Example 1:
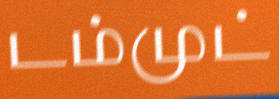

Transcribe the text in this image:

டம்முட்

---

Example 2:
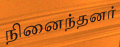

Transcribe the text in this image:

நினைந்தனர்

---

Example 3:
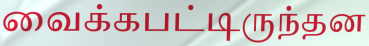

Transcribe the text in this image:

வைக்கபட்டிருந்தன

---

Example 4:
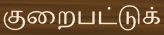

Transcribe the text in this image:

குறைபட்டுக்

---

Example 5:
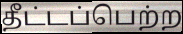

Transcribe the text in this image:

தீட்டப்பெற்ற